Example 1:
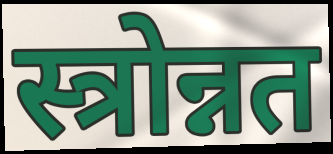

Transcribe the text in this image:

स्त्रोन्नत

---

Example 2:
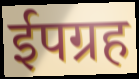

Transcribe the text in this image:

ईपग्रह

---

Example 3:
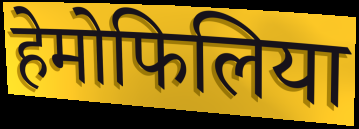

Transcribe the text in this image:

हेमोफिलिया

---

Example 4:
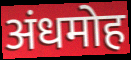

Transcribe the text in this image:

अंधमोह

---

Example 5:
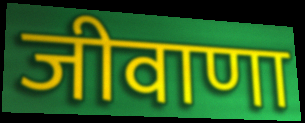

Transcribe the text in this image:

जीवाणा